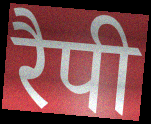
रैपी